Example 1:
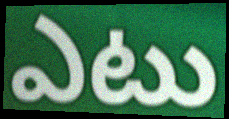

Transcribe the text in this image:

ఎటు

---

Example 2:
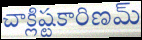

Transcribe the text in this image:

చాక్లిష్టకారిణమ్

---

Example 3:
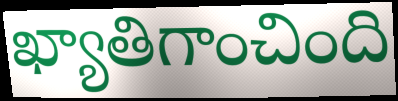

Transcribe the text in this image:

ఖ్యాతిగాంచింది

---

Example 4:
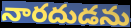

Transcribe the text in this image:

నారదుడను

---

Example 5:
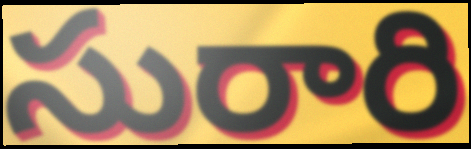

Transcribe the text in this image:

సురారి